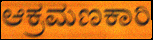
ಆಕ್ರಮಣಕಾರಿ